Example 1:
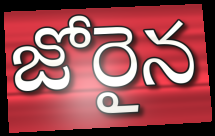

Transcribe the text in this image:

జోరైన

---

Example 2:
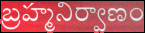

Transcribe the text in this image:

బ్రహ్మనిర్వాణం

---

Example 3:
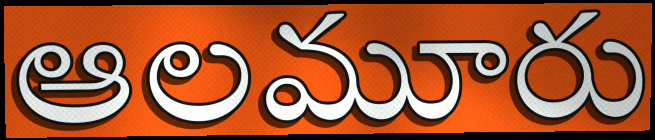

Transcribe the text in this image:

ఆలమూరు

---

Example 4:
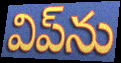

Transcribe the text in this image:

విప్‌ను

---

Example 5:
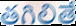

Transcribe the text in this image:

తగిలితే